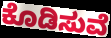
ಕೊಡಿಸುವೆ